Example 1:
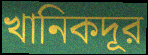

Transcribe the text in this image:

খানিকদূর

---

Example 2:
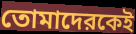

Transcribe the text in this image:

তোমাদেরকেই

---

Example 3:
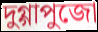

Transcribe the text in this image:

দুগ্গাপুজো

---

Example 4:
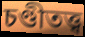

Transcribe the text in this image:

চণ্ডীতত্ত্ব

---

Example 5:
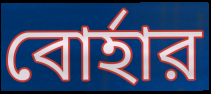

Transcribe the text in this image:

বোর্হার